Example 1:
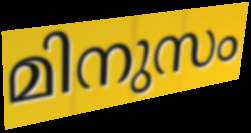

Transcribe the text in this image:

മിനുസം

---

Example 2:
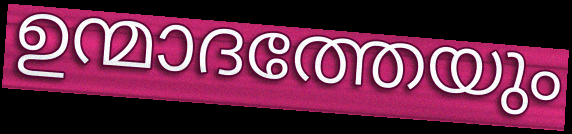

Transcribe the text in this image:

ഉന്മാദത്തേയും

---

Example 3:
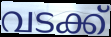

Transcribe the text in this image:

വടക്ക്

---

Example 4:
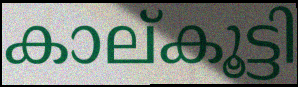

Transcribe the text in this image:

കാല്കൂട്ടി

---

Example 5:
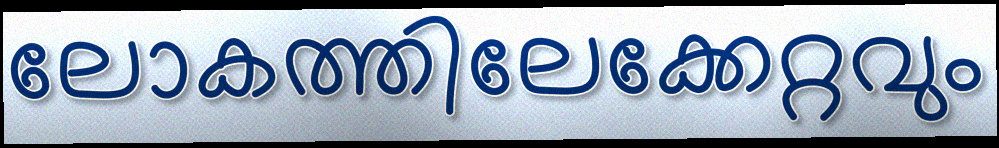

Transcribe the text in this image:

ലോകത്തിലേക്കേറ്റവും